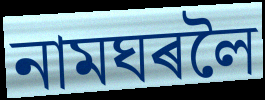
নামঘৰলৈ